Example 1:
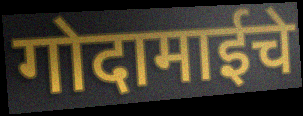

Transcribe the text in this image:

गोदामाईचे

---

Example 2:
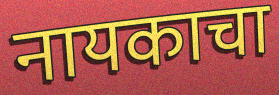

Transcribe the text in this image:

नायकाचा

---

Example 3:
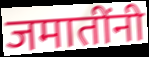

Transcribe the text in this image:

जमातींनी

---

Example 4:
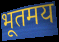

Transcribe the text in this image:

भूतमय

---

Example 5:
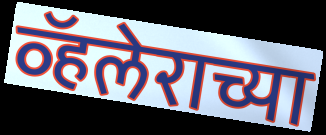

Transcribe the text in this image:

व्हॅलेराच्या